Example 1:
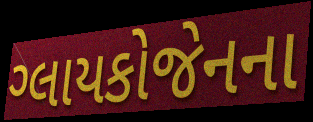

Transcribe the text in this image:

ગ્લાયકોજેનના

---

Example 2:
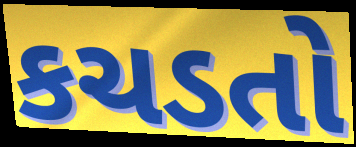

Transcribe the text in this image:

કચડતો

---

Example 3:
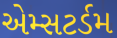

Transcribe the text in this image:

એમ્સટર્ડમ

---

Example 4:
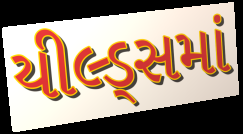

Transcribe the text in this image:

યીલ્ડ્સમાં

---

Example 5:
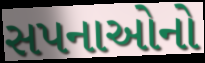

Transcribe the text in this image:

સપનાઓનો